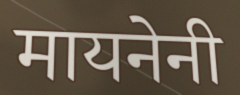
मायनेनी